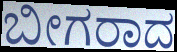
ಬೀಗರಾದ